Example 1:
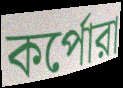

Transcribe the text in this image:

কর্পোরা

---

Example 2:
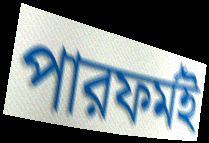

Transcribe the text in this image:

পারফর্মই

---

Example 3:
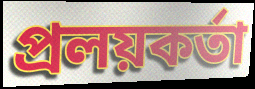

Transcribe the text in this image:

প্রলয়কর্তা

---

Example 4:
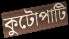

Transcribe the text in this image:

কুটোপাটি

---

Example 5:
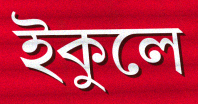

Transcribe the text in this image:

ইকুলে